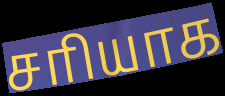
சரியாக